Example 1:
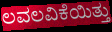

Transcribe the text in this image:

ಲವಲವಿಕೆಯಿತ್ತು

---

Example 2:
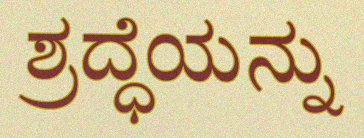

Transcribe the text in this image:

ಶ್ರದ್ಧೆಯನ್ನು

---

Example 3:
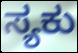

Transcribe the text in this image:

ಸ್ಯಕು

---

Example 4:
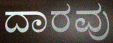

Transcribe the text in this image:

ದಾರವು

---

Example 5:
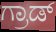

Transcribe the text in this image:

ಗ್ರಾಡ್